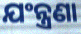
ଯଂନ୍ତ୍ରଣା